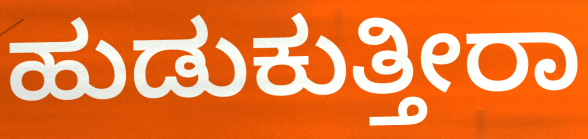
ಹುಡುಕುತ್ತೀರಾ